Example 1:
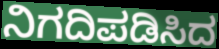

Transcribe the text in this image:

ನಿಗದಿಪಡಿಸಿದ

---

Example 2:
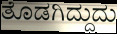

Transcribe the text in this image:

ತೊಡಗಿದ್ದುದು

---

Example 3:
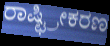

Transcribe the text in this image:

ರಾಷ್ಟ್ರೀಕರಣ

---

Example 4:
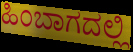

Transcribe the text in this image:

ಹಿಂಬಾಗದಲ್ಲಿ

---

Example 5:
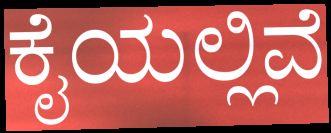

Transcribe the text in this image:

ಕೈಯಲ್ಲಿವೆ